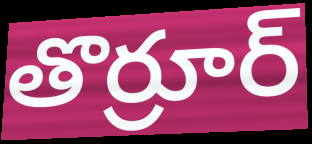
తొర్రూర్